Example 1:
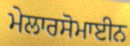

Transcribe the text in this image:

ਮੇਲਾਰਸੋਮਾਈਨ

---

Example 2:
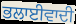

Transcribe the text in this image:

ਭਲਾਈਵਾਦੀ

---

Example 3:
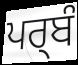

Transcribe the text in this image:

ਪਰ੍ਬੰ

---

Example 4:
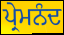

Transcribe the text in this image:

ਪ੍ਰੇਮਨੰਦ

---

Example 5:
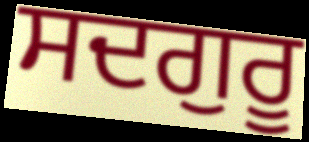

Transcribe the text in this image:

ਸਦਗੁਰੂ